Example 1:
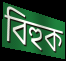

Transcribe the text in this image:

বিহুক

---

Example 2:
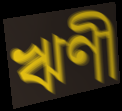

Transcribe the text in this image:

ঋণী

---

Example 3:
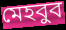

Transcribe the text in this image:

মেহবুব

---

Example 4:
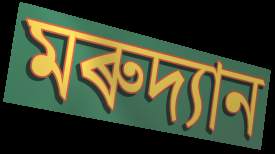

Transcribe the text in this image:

মৰুদ্যান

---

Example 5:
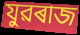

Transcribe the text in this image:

যুৱৰাজ